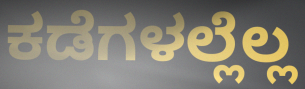
ಕಡೆಗಳಲ್ಲೆಲ್ಲ